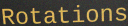
Rotations